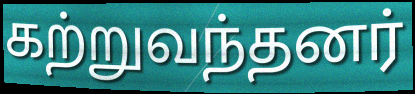
கற்றுவந்தனர்